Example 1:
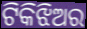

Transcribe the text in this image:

ଟିକିଝିଅର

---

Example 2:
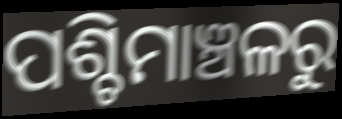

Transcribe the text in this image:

ପଶ୍ଚିମାଞ୍ଚଳରୁ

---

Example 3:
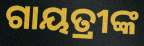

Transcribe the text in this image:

ଗାୟତ୍ରୀଙ୍କ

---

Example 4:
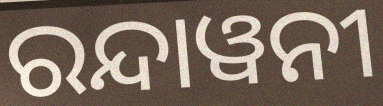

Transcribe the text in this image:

ରନ୍ଦାୱନୀ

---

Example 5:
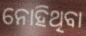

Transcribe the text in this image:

ନୋହିଥିବା